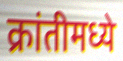
क्रांतीमध्ये